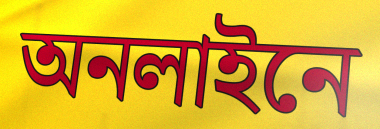
অনলাইনে